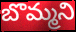
బొమ్మని